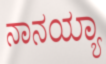
ನಾನಯ್ಯಾ